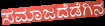
ಸಮಾಜದೆಡೆಗಿನ